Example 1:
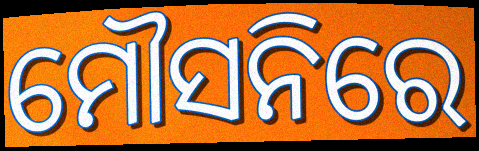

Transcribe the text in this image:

ମୌସନିରେ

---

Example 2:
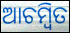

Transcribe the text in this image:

ଆଚମ୍ବିତ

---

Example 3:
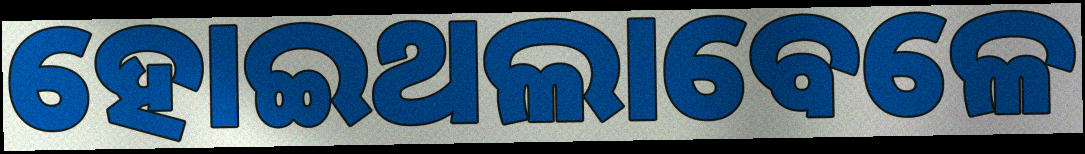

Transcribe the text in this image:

ହୋଇଥଲାବେଳେ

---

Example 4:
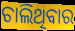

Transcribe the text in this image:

ଚାଲିଥିବାର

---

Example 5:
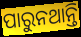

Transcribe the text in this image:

ପାରୁନଥାନ୍ତି